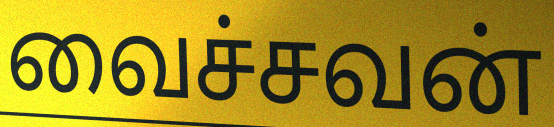
வைச்சவன்